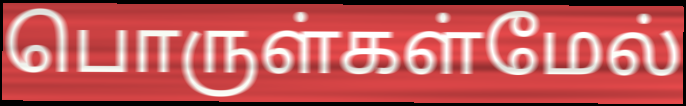
பொருள்கள்மேல்